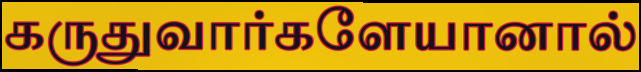
கருதுவார்களேயானால்